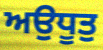
ਅਉਧੂਤੁ